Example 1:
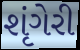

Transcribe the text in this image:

શૃંગેરી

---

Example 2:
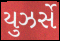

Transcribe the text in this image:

યુઝર્સે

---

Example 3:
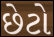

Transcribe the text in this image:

છેટો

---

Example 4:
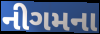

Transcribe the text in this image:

નીગમના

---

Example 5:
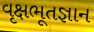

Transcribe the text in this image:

વૃક્ષભૂતજ્ઞાન